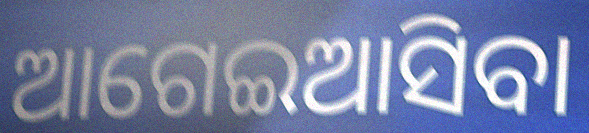
ଆଗେଇଆସିବା